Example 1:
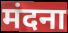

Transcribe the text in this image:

मंदना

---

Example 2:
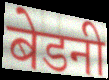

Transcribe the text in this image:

बेडनी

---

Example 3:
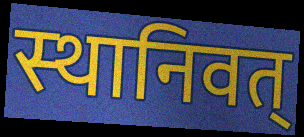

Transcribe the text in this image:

स्थानिवत्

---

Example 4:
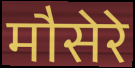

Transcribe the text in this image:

मौसेरे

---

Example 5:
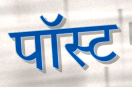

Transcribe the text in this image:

पॉस्ट